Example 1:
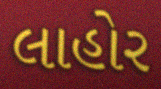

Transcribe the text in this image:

લાહોર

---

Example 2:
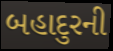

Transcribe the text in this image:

બહાદુરની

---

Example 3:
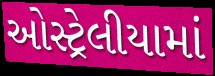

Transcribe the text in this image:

ઓસ્ટ્રેલીયામાં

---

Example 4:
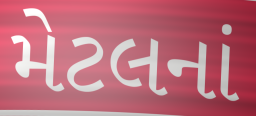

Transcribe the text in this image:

મેટલનાં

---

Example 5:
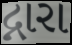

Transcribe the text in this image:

દ્નારા